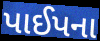
પાઈપના